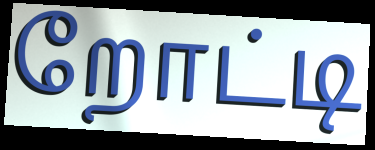
றோட்டி